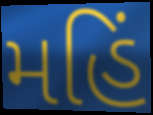
મહિં